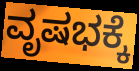
ವೃಷಭಕ್ಕೆ